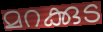
മറക്കുട